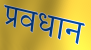
प्रवधान